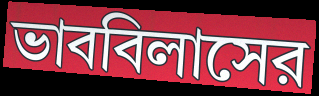
ভাববিলাসের